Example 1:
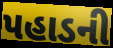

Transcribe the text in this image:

પહાડની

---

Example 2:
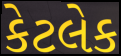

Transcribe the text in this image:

કેટલેક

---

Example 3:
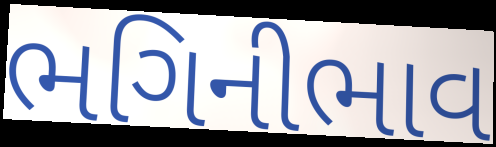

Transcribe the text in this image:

ભગિનીભાવ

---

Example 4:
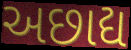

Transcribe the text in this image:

અછાદ્ય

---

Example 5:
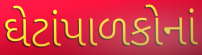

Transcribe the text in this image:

ઘેટાંપાળકોનાં